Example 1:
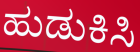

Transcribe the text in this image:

ಹುಡುಕಿಸಿ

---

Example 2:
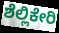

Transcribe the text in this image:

ಶೆಲ್ಲಿಕೇರಿ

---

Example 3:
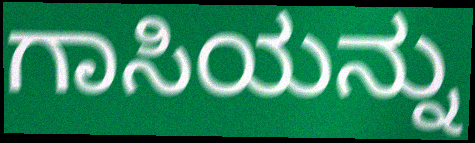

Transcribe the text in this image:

ಗಾಸಿಯನ್ನು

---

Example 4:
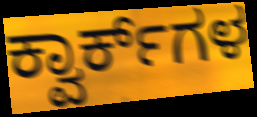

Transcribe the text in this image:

ಕ್ವಾರ್ಕ್‌ಗಳ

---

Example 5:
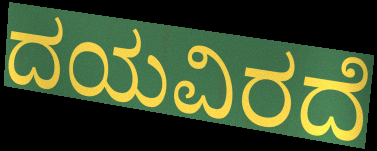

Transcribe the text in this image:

ದಯವಿರದೆ